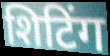
शिटिंग